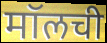
मॉलची